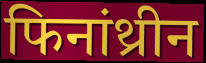
फिनांथ्रीन